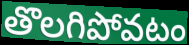
తొలగిపోవటం